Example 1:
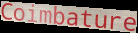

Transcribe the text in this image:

Coimbature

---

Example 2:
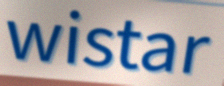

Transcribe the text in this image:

wistar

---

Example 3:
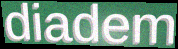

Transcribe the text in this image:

diadem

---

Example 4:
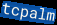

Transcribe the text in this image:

tcpalm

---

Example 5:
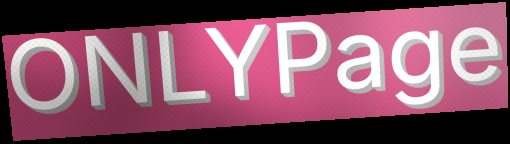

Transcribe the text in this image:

ONLYPage